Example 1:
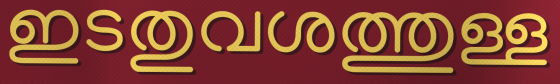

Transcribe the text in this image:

ഇടതുവശത്തുള്ള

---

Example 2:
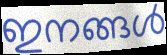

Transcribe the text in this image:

ഇനങ്ങൾ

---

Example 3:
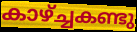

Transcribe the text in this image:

കാഴ്ച്ചകണ്ടു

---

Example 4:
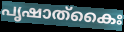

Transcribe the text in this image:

പൃഷാത്കൈഃ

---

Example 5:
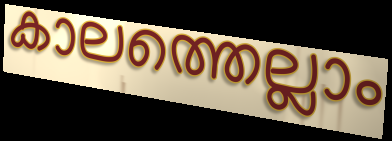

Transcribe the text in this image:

കാലത്തെല്ലാം